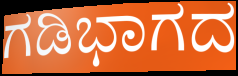
ಗಡಿಭಾಗದ